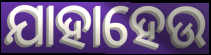
ଯାହାହେଉ